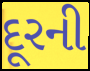
દૂરની